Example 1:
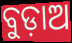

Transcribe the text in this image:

ବୁଡ଼ାଅ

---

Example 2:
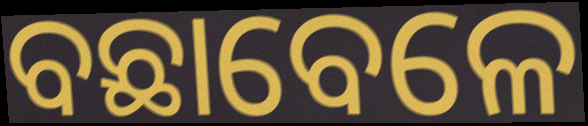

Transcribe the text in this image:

ବଛାବେଳେ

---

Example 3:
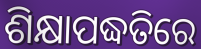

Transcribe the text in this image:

ଶିକ୍ଷାପଦ୍ଧତିରେ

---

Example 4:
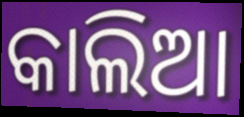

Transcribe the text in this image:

କାଲିଆ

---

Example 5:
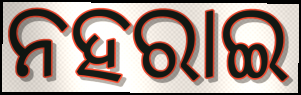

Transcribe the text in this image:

ନହରାଇ